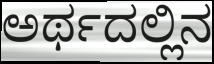
ಅರ್ಥದಲ್ಲಿನ